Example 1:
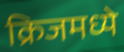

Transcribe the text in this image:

क्रिजमध्ये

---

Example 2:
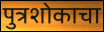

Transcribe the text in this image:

पुत्रशोकाचा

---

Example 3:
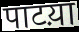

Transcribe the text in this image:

पाटय़ा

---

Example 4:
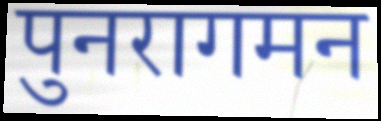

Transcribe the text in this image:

पुनरागमन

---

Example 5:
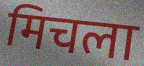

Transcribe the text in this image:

मिचला